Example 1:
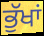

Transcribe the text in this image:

ਭੁੱਖਾਂ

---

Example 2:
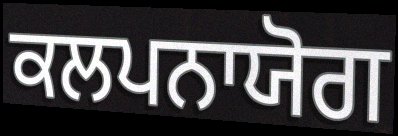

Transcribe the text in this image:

ਕਲਪਨਾਯੋਗ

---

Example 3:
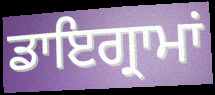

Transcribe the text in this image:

ਡਾਇਗ੍ਰਾਮਾਂ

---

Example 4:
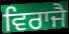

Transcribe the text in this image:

ਵਿਰਾਜੈ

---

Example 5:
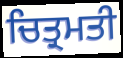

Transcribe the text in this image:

ਚਿਤ੍ਰਮਤੀ